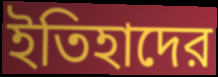
ইতিহাদের